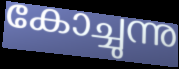
കോച്ചുന്നു